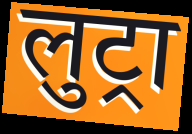
लुट्रा